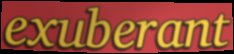
exuberant